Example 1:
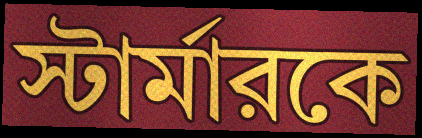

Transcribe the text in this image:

স্টার্মারকে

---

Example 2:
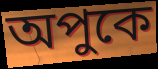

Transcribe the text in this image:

অপুকে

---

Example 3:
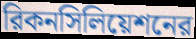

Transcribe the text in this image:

রিকনসিলিয়েশনের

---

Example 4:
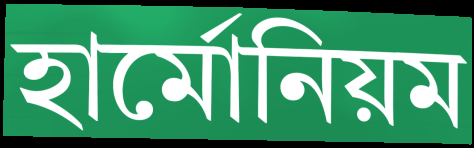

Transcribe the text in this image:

হার্মোনিয়ম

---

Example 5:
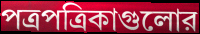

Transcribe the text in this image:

পত্রপত্রিকাগুলোর